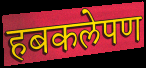
हबकलेपण